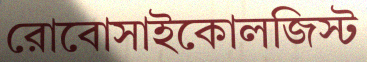
রোবোসাইকোলজিস্ট